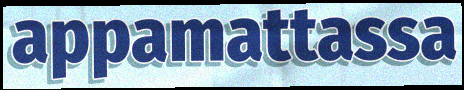
appamattassa